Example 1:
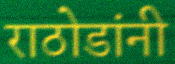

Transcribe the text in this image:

राठोडांनी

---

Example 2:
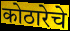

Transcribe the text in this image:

कोठारेचे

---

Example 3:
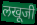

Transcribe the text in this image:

लखूजी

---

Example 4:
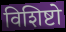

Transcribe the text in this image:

विशिष्टो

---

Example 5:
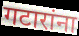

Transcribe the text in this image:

गटारांना